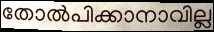
തോൽപിക്കാനാവില്ല